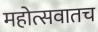
महोत्सवातच